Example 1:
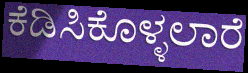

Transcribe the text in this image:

ಕೆಡಿಸಿಕೊಳ್ಳಲಾರೆ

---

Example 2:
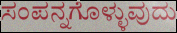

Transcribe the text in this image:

ಸಂಪನ್ನಗೊಳ್ಳುವುದು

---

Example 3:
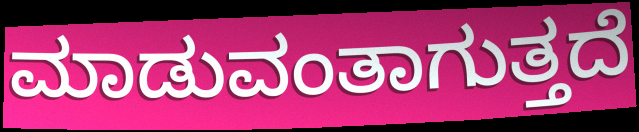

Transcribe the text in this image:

ಮಾಡುವಂತಾಗುತ್ತದೆ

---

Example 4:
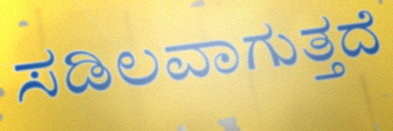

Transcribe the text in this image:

ಸಡಿಲವಾಗುತ್ತದೆ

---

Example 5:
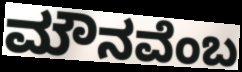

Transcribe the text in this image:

ಮೌನವೆಂಬ